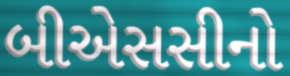
બીએસસીનો